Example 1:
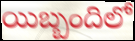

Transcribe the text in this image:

యిబ్బందిలో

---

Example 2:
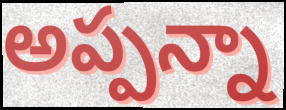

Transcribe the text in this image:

అప్పన్నా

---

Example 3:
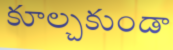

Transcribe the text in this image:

కూల్చకుండా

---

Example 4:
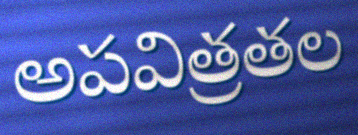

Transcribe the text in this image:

అపవిత్రతల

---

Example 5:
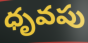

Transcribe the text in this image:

ధృవపు